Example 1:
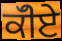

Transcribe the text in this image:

ਕੱੀਏ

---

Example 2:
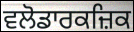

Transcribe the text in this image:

ਵਲੋਡਾਰਕਜ਼ਿਕ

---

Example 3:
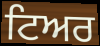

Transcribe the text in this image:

ਟਿਅਰ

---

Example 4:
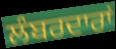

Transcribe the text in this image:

ਲੰਬਰਦਾਰਾਂ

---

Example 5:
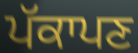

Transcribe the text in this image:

ਪੱਕਾਪਣ